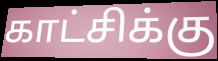
காட்சிக்கு